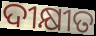
ଦୀକ୍ଷୀତ